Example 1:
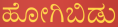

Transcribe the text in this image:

ಹೋಗಿಬಿಡು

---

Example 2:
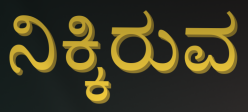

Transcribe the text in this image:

ನಿಕ್ಕಿರುವ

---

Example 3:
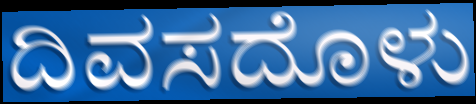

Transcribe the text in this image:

ದಿವಸದೊಳು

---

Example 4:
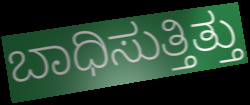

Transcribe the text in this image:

ಬಾಧಿಸುತ್ತಿತ್ತು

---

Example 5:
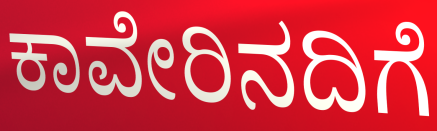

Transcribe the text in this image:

ಕಾವೇರಿನದಿಗೆ